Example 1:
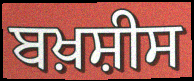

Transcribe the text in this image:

ਬਖ਼ਸ਼ੀਸ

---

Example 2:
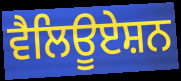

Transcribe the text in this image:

ਵੈਲਿਊਏਸ਼ਨ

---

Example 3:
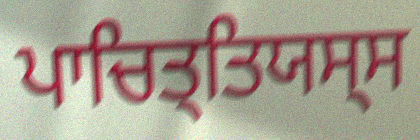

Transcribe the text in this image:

ਪਾਚਿਤ੍ਤਿਯਸ੍ਸ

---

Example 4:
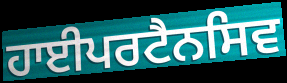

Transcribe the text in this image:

ਹਾਈਪਰਟੈਨਸਿਵ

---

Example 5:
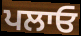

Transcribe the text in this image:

ਪਲਾਓ